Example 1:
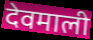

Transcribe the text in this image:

देवमाली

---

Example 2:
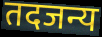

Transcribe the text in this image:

तदजन्य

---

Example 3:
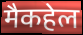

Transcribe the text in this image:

मैकहेल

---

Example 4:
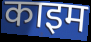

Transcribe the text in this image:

काइम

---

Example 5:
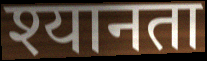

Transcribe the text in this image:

श्यानता